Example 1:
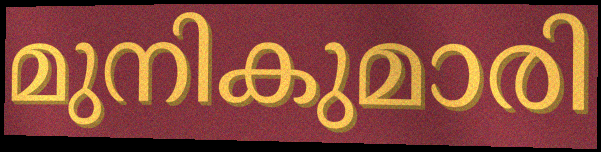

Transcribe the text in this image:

മുനികുമാരി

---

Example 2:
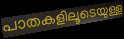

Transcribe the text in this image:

പാതകളിലൂടെയുള്ള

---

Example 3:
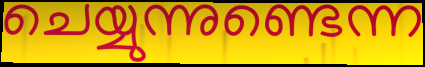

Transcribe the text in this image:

ചെയ്യുന്നുണ്ടെന്ന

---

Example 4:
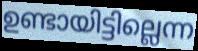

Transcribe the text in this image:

ഉണ്ടായിട്ടില്ലെന്ന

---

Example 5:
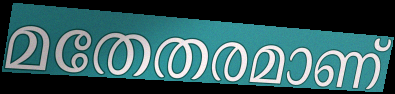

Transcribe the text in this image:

മതേതരമാണ്